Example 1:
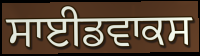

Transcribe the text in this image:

ਸਾਈਡਵਾਕਸ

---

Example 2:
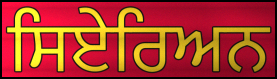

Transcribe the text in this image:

ਸਿਏਰਿਅਨ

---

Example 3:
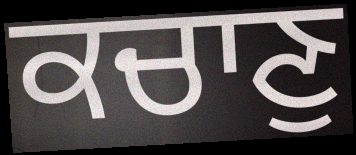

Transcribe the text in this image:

ਕਚਾਣੁ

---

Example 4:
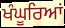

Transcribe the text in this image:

ਖੰਘੂਰਿਆਂ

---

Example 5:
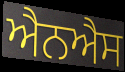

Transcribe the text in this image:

ਐਨਐਸ